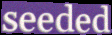
seeded